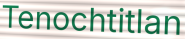
Tenochtitlan